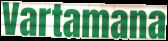
Vartamana